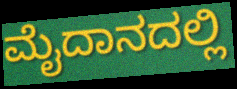
ಮೈದಾನದಲ್ಲಿ